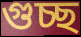
গুচ্ছ